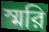
স্মরি